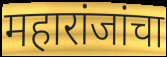
महारांजांचा